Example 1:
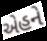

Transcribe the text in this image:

એહને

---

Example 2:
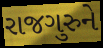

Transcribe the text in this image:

રાજગુરુને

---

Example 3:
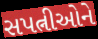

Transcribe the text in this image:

સપત્નીઓને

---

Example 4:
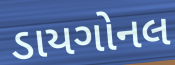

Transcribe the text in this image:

ડાયગોનલ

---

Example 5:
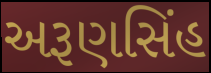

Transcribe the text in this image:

અરૂણસિંહ